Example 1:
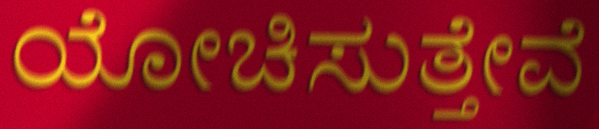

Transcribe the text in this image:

ಯೋಚಿಸುತ್ತೇವೆ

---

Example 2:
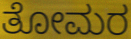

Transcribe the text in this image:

ತೋಮರ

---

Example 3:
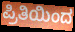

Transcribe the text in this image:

ಪ್ರಿತಿಯಿಂದ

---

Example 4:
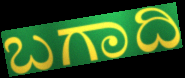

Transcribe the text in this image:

ಬಗಾದಿ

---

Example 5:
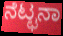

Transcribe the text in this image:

ನೆಟ್ಟನಾ